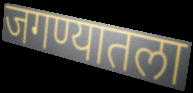
जगण्यातला